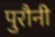
पुरौनी